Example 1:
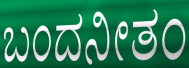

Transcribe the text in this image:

ಬಂದನೀತಂ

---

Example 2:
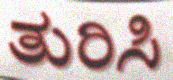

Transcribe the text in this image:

ತುರಿಸಿ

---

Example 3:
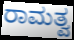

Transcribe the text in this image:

ರಾಮತ್ವ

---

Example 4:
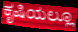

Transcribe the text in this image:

ಕೃಷಿಯಲ್ಲೂ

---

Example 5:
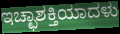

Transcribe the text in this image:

ಇಚ್ಛಾಶಕ್ತಿಯಾದಳು